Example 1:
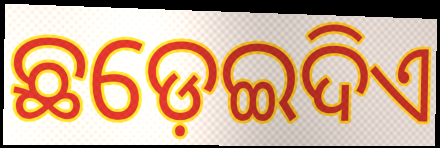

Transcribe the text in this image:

ଛଡ଼େଇଦିଏ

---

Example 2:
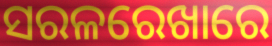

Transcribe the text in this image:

ସରଳରେଖାରେ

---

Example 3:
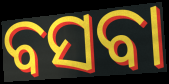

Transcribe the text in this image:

ବସବା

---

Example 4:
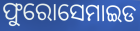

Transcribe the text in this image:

ଫୁରୋସେମାଇଡ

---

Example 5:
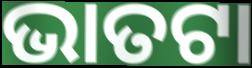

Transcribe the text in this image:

ଭାତଟା